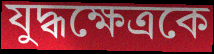
যুদ্ধক্ষেত্রকে